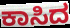
ಕಾಸಿದ